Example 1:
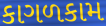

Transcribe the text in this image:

કાગળકામ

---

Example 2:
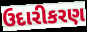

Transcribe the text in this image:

ઉદારીકરણ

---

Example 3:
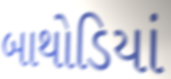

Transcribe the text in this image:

બાથોડિયાં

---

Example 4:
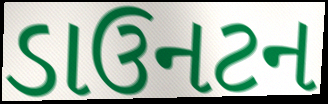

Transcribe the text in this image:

ડાઉનટન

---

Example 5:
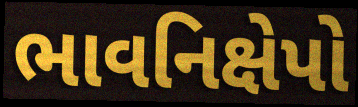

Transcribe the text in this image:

ભાવનિક્ષેપો